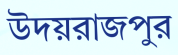
উদয়রাজপুর